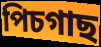
পিচগাছ